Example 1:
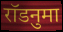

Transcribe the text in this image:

रॉडनुमा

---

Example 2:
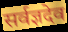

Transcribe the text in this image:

सर्वज्ञदेव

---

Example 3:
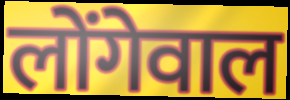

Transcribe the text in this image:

लोंगेवाल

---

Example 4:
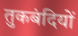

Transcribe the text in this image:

तुकबंदियों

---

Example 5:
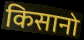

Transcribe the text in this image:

किसानो